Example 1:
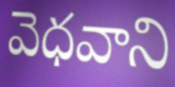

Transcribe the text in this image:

వెధవాని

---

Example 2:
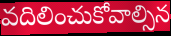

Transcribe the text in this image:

వదిలించుకోవాల్సిన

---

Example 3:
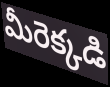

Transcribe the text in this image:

మీరెక్కడి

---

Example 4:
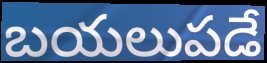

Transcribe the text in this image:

బయలుపడే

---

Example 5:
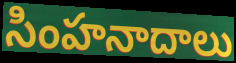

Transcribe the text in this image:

సింహనాదాలు